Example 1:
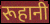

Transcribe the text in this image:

रूहानी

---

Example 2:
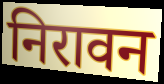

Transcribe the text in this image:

निरावन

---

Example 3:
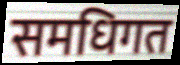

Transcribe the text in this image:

समधिगत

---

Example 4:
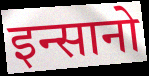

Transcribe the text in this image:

इन्सानो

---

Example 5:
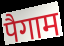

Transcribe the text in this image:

पैगाम